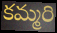
కమ్మరి